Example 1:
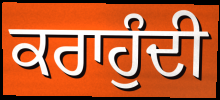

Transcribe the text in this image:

ਕਰਾਹੁੰਦੀ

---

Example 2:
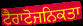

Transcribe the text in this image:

ਟੈਰਾਟੋਜਨਿਕਤਾ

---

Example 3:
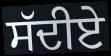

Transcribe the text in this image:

ਸੱਦੀਏ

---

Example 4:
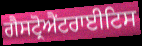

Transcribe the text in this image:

ਗੈਸਟ੍ਰੋਐਂਟਰਾਈਟਿਸ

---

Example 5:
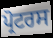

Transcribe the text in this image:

ਪ੍ਰੋਟਰਸ